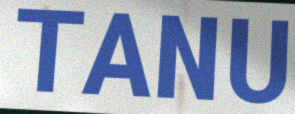
TANU